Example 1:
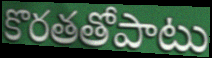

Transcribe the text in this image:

కొరతతోపాటు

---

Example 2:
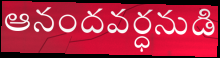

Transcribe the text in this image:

ఆనందవర్ధనుడి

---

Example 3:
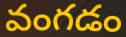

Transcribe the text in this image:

వంగడం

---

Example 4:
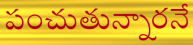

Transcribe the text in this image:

పంచుతున్నారనే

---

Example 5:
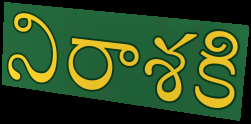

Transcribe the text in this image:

నిరాశకి